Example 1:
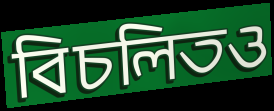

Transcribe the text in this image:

বিচলিতও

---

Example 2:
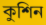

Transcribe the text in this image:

কুশিন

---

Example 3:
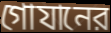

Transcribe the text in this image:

গোযানের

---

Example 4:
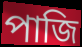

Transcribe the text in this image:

পাজি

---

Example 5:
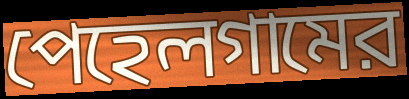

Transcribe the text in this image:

পেহেলগামের